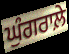
ਘੁੰਗਰਾਲ਼ੇ